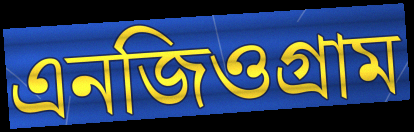
এনজিওগ্রাম